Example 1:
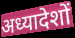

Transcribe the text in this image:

अध्यादेशों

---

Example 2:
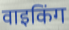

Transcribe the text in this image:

वाइकिंग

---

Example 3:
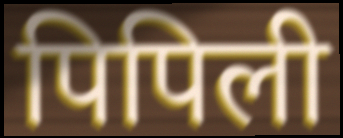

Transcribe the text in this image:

पिपिली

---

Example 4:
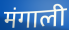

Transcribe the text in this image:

मंगाली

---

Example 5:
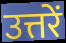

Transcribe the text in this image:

उत्तरें